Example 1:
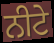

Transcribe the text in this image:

ਨੀਟੇ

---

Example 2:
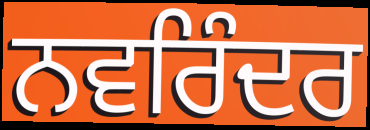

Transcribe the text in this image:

ਨਵਰਿੰਦਰ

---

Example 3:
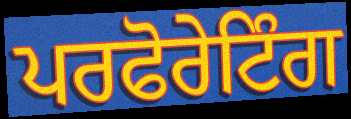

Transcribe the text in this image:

ਪਰਫੋਰੇਟਿੰਗ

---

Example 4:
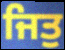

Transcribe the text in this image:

ਜਿਤੁ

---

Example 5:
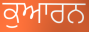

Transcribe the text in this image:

ਕੁਆਰਨ